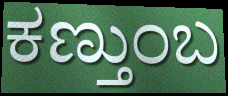
ಕಣ್ತುಂಬ